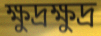
ক্ষুদ্রক্ষুদ্র